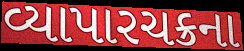
વ્યાપારચક્રના